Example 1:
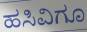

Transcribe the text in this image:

ಹಸಿವಿಗೂ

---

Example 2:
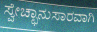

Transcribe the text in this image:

ಸ್ವೇಚ್ಛಾನುಸಾರವಾಗಿ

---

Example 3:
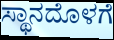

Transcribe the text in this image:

ಸ್ಥಾನದೊಳಗೆ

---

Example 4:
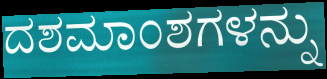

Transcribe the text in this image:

ದಶಮಾಂಶಗಳನ್ನು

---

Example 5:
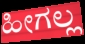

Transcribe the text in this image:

ಹೀಗಲ್ಲ